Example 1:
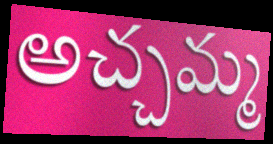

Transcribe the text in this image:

అచ్చమ్మ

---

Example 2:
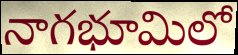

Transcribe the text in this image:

నాగభూమిలో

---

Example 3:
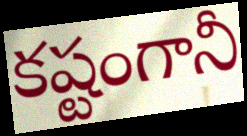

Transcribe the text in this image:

కష్టంగానీ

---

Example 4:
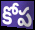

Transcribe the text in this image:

కోప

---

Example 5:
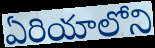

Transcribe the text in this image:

ఏరియాలోని